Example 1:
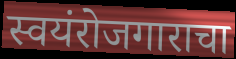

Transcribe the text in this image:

स्वयंरोजगाराचा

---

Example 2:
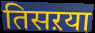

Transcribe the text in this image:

तिसऱया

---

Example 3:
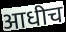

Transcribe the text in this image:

आधीच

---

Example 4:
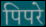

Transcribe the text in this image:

पिपरे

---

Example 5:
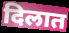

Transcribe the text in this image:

दिलात